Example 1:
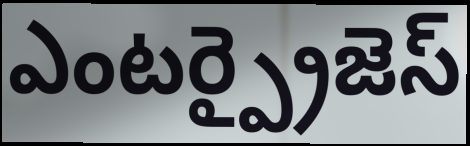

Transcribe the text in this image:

ఎంటర్ప్రైజెస్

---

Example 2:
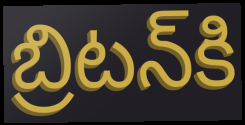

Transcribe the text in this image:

బ్రిటన్‌కి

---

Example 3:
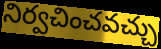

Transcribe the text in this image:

నిర్వచించవచ్చు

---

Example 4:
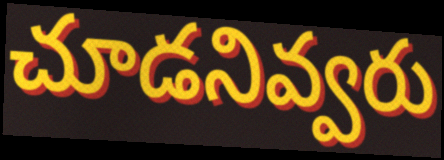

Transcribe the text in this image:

చూడనివ్వరు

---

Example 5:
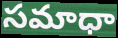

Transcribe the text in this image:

సమాధా